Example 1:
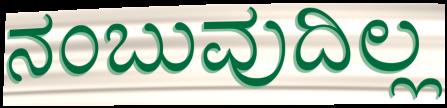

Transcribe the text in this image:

ನಂಬುವುದಿಲ್ಲ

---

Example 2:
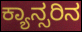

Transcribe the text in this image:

ಕ್ಯಾನ್ಸರಿನ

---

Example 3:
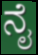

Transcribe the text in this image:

ನೈ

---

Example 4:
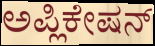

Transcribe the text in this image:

ಅಪ್ಲಿಕೇಷನ್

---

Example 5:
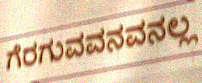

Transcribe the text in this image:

ಗೆರಗುವವನವನಲ್ಲ